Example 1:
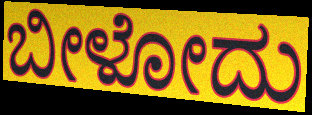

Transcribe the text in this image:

ಬೀಳೋದು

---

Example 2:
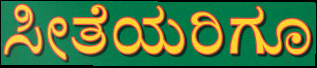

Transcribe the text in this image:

ಸೀತೆಯರಿಗೂ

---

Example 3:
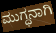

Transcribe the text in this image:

ಮುಗ್ಧನಾಗಿ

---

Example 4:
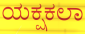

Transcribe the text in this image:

ಯಕ್ಷಕಲಾ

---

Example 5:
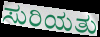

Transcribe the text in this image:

ಸುರಿಯತು